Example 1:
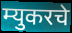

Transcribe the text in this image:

म्युकरचे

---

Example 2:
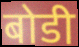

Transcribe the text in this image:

बोडी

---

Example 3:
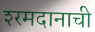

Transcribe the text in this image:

श्रमदानाची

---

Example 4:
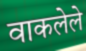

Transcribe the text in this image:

वाकलेले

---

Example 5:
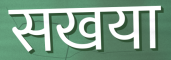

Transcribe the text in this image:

सखया